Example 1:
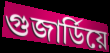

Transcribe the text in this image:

গুজাৰ্ডিয়ে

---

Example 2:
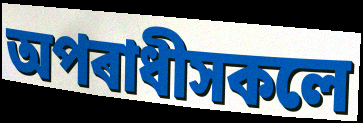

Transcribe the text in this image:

অপৰাধীসকলে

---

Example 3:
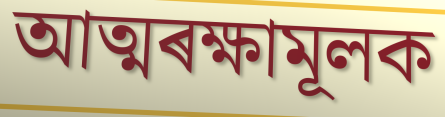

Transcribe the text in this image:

আত্মৰক্ষামূলক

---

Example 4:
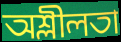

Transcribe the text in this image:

অশ্লীলতা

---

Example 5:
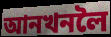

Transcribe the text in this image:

আনখনলৈ